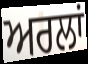
ਅਰਲਾਂ